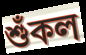
শুঁকল